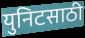
युनिटसाठी